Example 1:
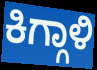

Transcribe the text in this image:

ಕಿಗ್ಗಾಳಿ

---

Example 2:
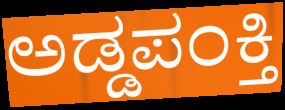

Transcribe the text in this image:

ಅಡ್ಡಪಂಕ್ತಿ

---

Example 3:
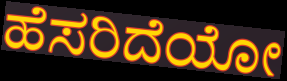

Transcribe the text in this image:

ಹೆಸರಿದೆಯೋ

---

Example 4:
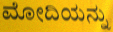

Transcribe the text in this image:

ಮೋದಿಯನ್ನು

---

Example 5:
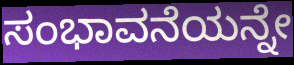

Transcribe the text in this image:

ಸಂಭಾವನೆಯನ್ನೇ